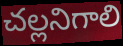
చల్లనిగాలి